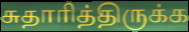
சுதாரித்திருக்க